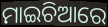
ମାଇଚିଆରେ